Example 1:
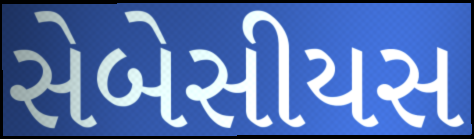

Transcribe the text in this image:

સેબેસીયસ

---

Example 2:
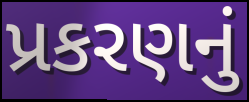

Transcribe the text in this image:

પ્રકરણનું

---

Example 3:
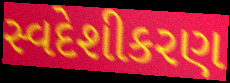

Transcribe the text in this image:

સ્વદેશીકરણ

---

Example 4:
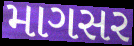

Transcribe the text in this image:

માગસર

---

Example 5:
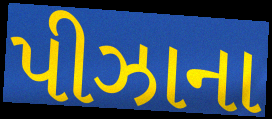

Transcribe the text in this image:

પીઝાના